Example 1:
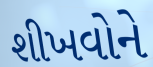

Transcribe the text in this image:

શીખવોને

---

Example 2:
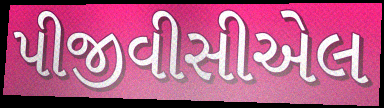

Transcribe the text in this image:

પીજીવીસીએલ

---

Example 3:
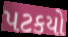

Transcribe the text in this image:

પટકયો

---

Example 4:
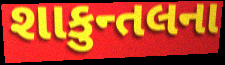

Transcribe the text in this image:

શાકુન્તલના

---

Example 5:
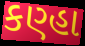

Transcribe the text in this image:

કણ્હા